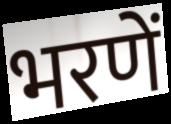
भरणें